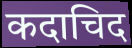
कदाचिद